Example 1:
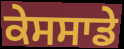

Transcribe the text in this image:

ਕੇਸਸਾਡੇ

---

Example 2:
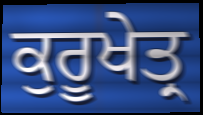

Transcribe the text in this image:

ਕੁਰੂਖੇਤ੍ਰ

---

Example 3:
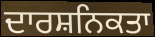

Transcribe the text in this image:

ਦਾਰਸ਼ਨਿਕਤਾ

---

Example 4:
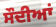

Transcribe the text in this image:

ਸੌਦੀਆਂ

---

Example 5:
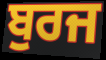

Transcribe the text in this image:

ਬੁਰਜ